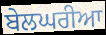
ਬੇਲਘਰੀਆ